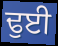
ਢੁਈ